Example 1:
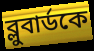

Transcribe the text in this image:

ব্লুবার্ডকে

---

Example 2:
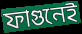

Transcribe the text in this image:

ফাগুনেই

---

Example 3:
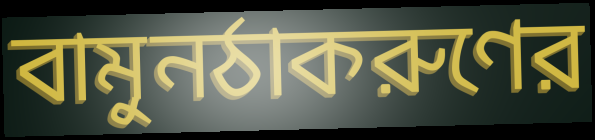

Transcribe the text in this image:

বামুনঠাকরুণের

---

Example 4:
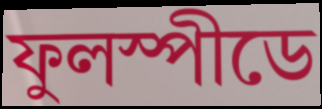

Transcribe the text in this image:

ফুলস্পীডে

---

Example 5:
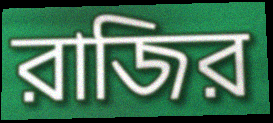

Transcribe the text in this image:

রাজির